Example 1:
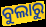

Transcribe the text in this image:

ବୁଲାରୁ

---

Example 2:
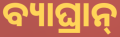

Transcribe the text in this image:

ବ୍ୟାଘ୍ରାନ୍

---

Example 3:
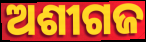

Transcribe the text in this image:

ଅଶୀଗଜ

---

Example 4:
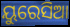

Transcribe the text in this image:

ୟୁରେସିଆ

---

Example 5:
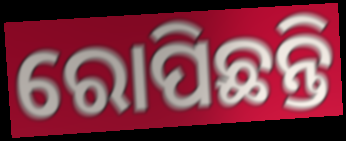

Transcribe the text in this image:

ରୋପିଛନ୍ତି